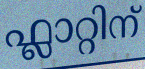
ഫ്ലാറ്റിന്